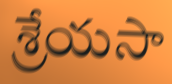
శ్రేయసా